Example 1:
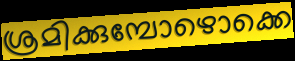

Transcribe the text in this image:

ശ്രമിക്കുമ്പോഴൊക്കെ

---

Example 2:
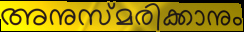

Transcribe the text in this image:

അനുസ്മരിക്കാനും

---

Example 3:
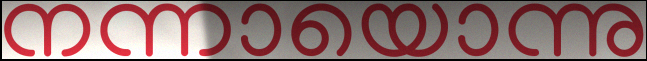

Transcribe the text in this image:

നന്നായൊന്നു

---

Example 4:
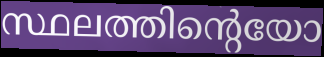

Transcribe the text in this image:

സ്ഥലത്തിന്റെയോ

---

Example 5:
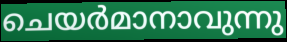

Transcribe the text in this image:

ചെയർമാനാവുന്നു